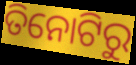
ତିନୋଟିରୁ